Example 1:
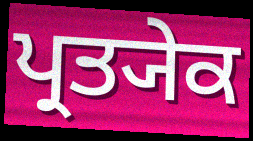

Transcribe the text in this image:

ਪ੍ਰਤ੍ਯੇਕ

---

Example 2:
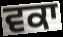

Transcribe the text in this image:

ਵਕਾ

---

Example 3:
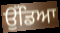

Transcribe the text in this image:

ਉੱਡਿਆ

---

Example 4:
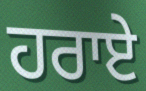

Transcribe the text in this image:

ਹਰਾਏ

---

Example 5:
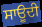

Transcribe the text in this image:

ਸਾਊਦੀ